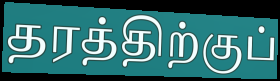
தரத்திற்குப்